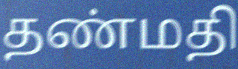
தண்மதி